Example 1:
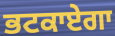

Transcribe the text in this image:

ਭਟਕਾਏਗਾ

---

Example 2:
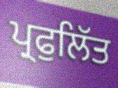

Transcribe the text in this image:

ਪ੍ਰਫੁਲਿੱਤ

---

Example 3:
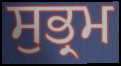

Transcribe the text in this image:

ਸੁਭ੍ਰਮ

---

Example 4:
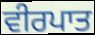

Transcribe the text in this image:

ਵੀਰਪਾਤ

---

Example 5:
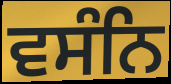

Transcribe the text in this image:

ਵਸੰਨਿ